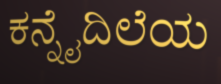
ಕನ್ನೈದಿಲೆಯ